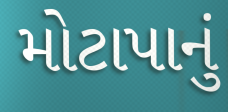
મોટાપાનું